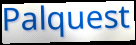
Palquest